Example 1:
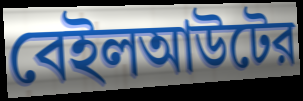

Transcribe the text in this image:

বেইলআউটের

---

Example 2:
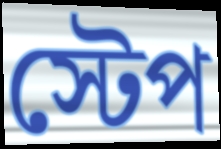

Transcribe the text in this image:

স্টেপ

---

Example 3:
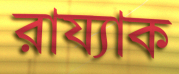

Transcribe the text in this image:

রায্যাক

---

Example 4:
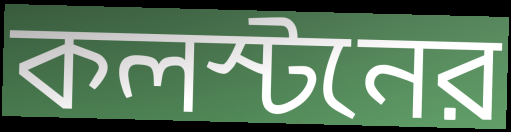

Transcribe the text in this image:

কলস্টনের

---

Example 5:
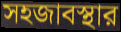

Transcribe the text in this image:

সহজাবস্থার